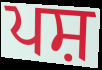
ਪਸ਼